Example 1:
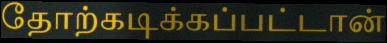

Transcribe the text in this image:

தோற்கடிக்கப்பட்டான்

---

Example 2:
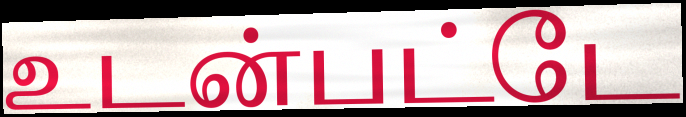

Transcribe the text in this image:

உடன்பட்டே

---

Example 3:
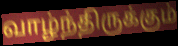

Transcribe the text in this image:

வாழ்ந்திருக்கும்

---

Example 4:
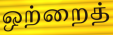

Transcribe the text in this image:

ஒற்றைத்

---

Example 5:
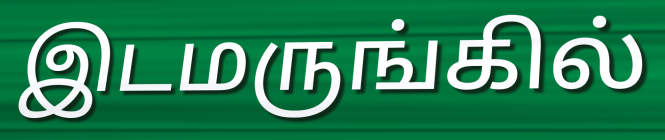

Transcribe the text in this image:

இடமருங்கில்